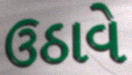
ઉઠાવે